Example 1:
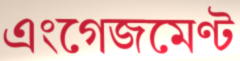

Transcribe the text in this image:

এংগেজমেণ্ট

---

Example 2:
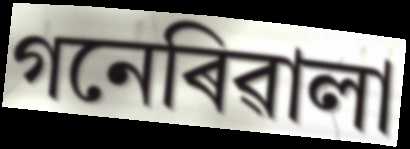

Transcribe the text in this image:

গনেৰিৱালা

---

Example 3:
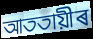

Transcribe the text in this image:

আততায়ীৰ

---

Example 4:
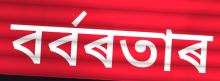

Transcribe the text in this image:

বৰ্বৰতাৰ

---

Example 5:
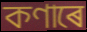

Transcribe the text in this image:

কণাৰে